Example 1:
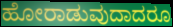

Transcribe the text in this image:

ಹೋರಾಡುವುದಾದರೂ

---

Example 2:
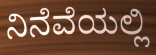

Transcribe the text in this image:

ನಿನೆವೆಯಲ್ಲಿ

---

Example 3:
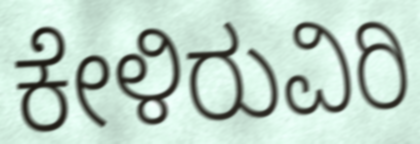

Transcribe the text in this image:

ಕೇಳಿರುವಿರಿ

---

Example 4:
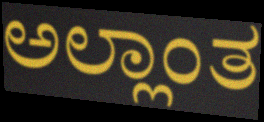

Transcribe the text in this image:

ಅಲ್ಲಾಂತ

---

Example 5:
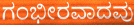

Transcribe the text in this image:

ಗಂಭೀರವಾದವು